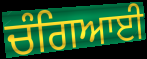
ਚੰਗਿਆਈ